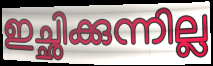
ഇച്ഛിക്കുന്നില്ല